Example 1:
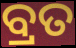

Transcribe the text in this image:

ବ୍ରତ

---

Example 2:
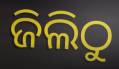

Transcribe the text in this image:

ଜିଲିଠୁ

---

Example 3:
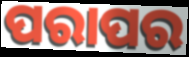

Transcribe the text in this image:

ପରାପର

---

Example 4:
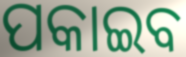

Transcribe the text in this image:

ପକାଇବ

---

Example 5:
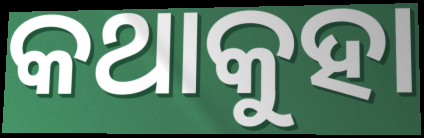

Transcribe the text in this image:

କଥାକୁହା